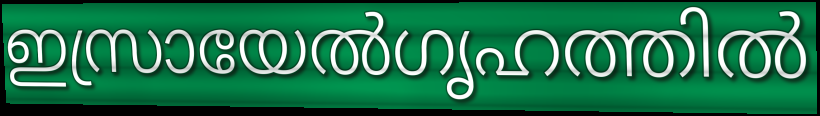
ഇസ്രായേൽഗൃഹത്തിൽ